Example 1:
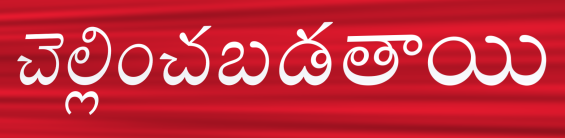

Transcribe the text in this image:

చెల్లించబడతాయి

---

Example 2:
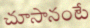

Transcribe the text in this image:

చూసానంటే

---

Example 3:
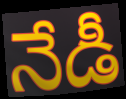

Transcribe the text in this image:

నేడీ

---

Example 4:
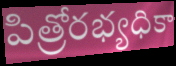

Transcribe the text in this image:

పిత్రోరభ్యధికా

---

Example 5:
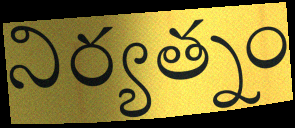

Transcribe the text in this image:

నిర్యత్నం